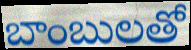
బాంబులతో